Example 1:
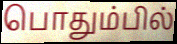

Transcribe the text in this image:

பொதும்பில்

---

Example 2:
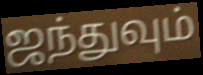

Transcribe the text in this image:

ஜந்துவும்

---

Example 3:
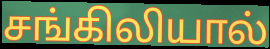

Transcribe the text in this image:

சங்கிலியால்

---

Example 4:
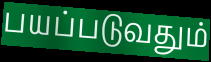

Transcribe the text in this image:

பயப்படுவதும்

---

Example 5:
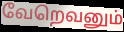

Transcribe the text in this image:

வேறெவனும்